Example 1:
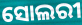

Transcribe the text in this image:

ସୋଲରୀ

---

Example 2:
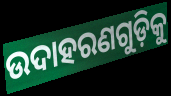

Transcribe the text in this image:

ଉଦାହରଣଗୁଡ଼ିକୁ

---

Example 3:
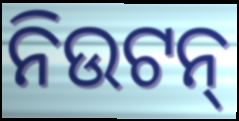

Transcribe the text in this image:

ନିଉଟନ୍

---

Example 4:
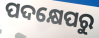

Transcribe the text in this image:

ପଦକ୍ଷେପରୁ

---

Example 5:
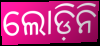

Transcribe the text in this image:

ଲୋଡ଼ିନି